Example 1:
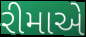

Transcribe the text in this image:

રીમાએ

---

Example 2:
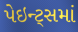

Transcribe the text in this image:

પેઇન્ટ્સમાં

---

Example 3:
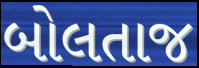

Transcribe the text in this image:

બોલતાજ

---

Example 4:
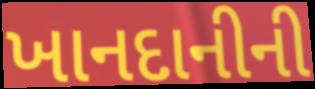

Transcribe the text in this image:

ખાનદાનીની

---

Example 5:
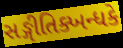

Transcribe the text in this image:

સઙ્ગીતિક્ખન્ધકે